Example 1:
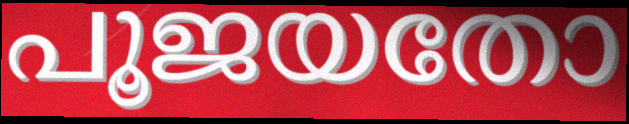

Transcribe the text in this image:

പൂജയതോ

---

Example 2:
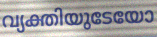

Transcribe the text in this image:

വ്യക്തിയുടേയോ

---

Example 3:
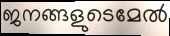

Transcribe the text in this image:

ജനങ്ങളുടെമേൽ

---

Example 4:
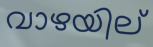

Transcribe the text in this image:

വാഴയില്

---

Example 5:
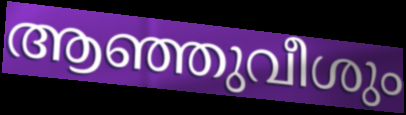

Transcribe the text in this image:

ആഞ്ഞുവീശും